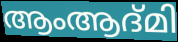
ആംആദ്മി